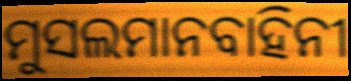
ମୁସଲମାନବାହିନୀ